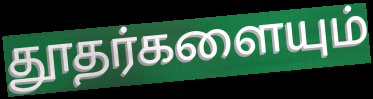
தூதர்களையும்